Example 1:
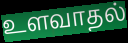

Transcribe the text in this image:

உளவாதல்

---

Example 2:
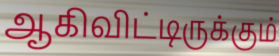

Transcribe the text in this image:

ஆகிவிட்டிருக்கும்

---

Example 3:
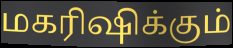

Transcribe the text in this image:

மகரிஷிக்கும்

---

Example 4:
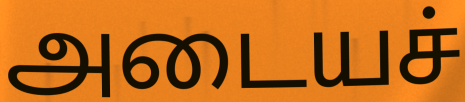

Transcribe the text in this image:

அடையச்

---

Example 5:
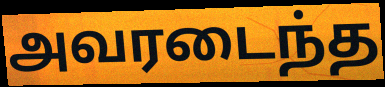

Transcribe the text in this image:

அவரடைந்த